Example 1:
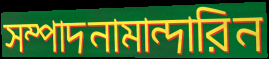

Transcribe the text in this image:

সম্পাদনামান্দারিন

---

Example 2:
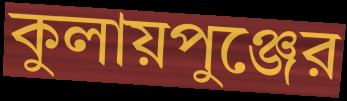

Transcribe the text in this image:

কুলায়পুঞ্জের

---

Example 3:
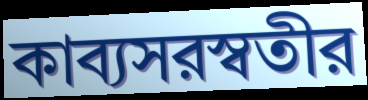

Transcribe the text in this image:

কাব্যসরস্বতীর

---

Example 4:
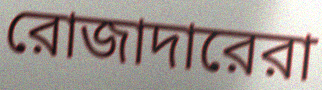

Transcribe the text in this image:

রোজাদারেরা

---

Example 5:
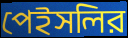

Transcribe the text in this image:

পেইসলির